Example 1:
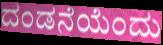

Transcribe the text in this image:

ದಂಡನೆಯೆಂದು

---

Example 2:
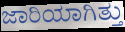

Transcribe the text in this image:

ಜಾರಿಯಾಗಿತ್ತು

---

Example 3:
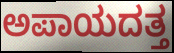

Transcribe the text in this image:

ಅಪಾಯದತ್ತ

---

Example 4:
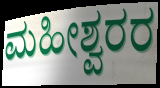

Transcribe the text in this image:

ಮಹೀಶ್ವರರ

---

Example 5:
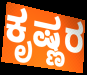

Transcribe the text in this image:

ಕೃಷ್ಣರ